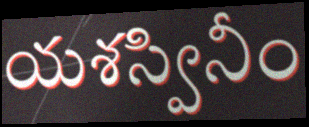
యశస్వినీం